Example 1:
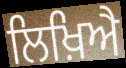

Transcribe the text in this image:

ਲਿਖ਼ਿਐ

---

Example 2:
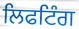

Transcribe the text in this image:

ਲਿਫਟਿੰਗ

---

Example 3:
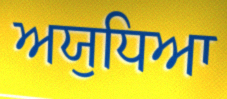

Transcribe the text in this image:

ਅਯੁਧਿਆ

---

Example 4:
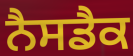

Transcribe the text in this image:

ਨੈਸਡੈਕ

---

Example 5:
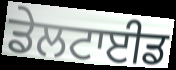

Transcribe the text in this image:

ਡੇਲਟਾਈਡ